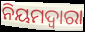
ନିୟମଦ୍ଵାରା